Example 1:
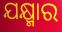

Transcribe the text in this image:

ଯକ୍ଷ୍ମାର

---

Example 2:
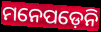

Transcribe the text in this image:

ମନେପଡ଼େନି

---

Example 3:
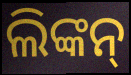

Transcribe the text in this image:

ଲିଙ୍କନ୍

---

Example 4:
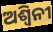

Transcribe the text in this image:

ଅଶ୍ୱିନୀ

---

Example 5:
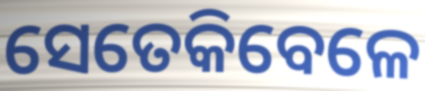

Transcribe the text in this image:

ସେତେକିବେଳେ